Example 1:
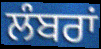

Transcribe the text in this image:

ਲੰਬਰਾਂ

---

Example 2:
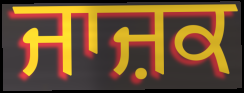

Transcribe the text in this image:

ਜਾਜ਼ਕ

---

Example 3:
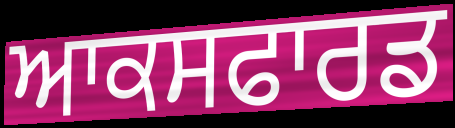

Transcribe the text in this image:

ਆਕਸਫਾਰਡ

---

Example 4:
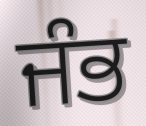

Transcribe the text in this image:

ਜੰਭ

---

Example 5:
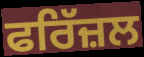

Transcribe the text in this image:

ਫਰਿੱਜ਼ਲ